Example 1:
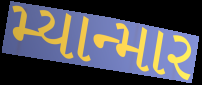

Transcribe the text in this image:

મ્યાન્માર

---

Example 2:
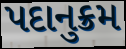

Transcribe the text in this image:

પદાનુક્રમ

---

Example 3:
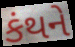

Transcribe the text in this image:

કંથને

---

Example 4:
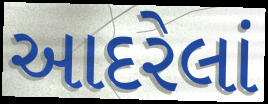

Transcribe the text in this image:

આદરેલાં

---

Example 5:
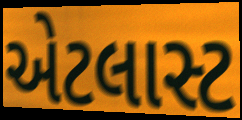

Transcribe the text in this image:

એટલાસ્ટ